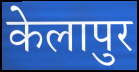
केलापुर